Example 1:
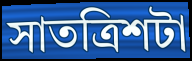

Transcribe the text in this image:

সাতত্ৰিশটা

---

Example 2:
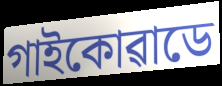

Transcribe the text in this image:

গাইকোৱাডে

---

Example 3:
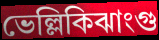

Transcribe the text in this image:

ভেল্লিকিঝাংগু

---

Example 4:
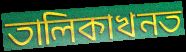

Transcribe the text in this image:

তালিকাখনত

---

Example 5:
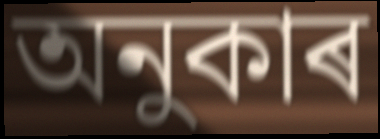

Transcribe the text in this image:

অনুকাৰ